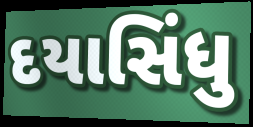
દયાસિંધુ